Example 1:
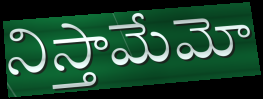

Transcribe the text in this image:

నిస్తామేమో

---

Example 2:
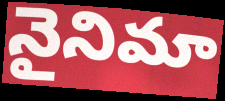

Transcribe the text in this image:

నైనిమా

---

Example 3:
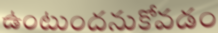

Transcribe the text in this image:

ఉంటుందనుకోవడం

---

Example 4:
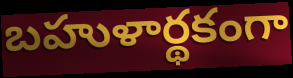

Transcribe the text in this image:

బహుళార్థకంగా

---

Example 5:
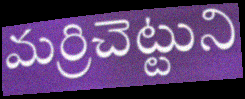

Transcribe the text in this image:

మర్రిచెట్టుని